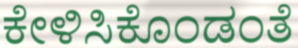
ಕೇಳಿಸಿಕೊಂಡಂತೆ